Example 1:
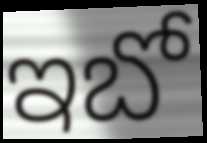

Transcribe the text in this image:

ఇబో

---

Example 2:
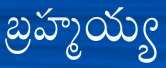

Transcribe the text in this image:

బ్రహ్మయ్య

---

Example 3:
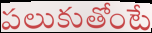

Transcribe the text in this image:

పలుకుతోంటే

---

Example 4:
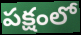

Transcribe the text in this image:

పక్షంలో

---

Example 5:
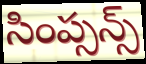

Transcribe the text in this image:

సింప్సన్స్